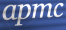
apmc